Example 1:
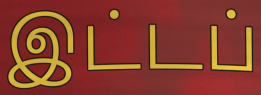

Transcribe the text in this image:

இட்டப்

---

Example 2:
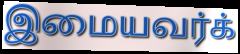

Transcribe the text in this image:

இமையவர்க்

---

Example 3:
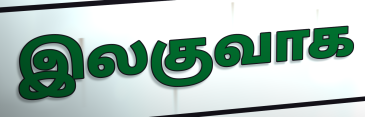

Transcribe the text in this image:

இலகுவாக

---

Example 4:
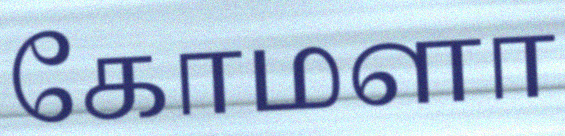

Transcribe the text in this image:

கோமளா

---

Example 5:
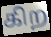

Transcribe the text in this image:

கிற